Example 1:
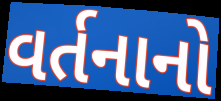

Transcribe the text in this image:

વર્તનાનો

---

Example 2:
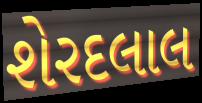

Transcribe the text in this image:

શેરદલાલ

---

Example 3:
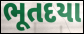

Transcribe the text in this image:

ભૂતદયા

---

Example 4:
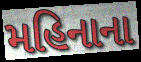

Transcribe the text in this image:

મહિનાના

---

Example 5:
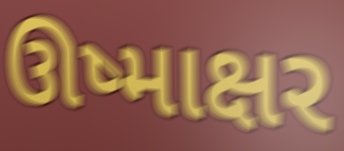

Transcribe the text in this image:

ઊષ્માક્ષર